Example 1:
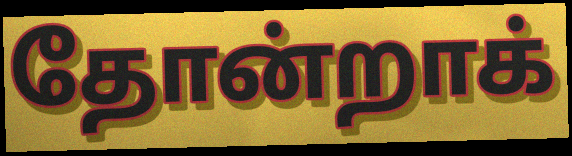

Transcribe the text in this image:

தோன்றாக்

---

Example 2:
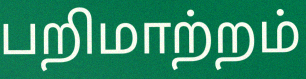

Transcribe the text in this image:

பறிமாற்றம்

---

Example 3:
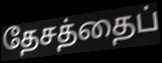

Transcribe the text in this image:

தேசத்தைப்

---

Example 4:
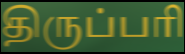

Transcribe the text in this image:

திருப்பரி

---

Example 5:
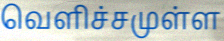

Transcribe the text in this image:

வெளிச்சமுள்ள